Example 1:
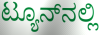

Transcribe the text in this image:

ಟ್ಯೂನ್‌ನಲ್ಲಿ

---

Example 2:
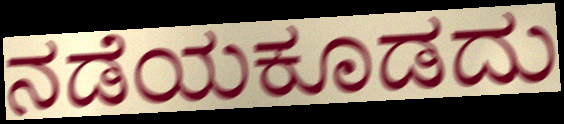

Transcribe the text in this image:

ನಡೆಯಕೂಡದು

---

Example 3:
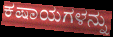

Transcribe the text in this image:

ಕಷಾಯಗಳನ್ನು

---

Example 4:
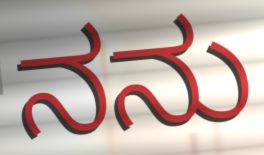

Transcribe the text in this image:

ನನು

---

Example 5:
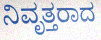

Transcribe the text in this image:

ನಿವೃತ್ತರಾದ